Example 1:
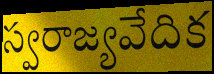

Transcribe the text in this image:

స్వరాజ్యవేదిక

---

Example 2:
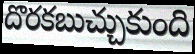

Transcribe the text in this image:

దొరకబుచ్చుకుంది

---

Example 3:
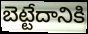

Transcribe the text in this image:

బెట్టేదానికి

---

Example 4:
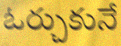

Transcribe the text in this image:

ఓర్చుకునే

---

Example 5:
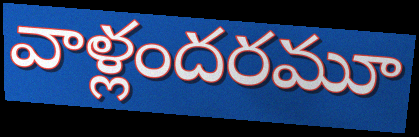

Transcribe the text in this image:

వాళ్లందరమూ